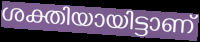
ശക്തിയായിട്ടാണ്